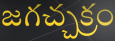
జగచ్చక్రం